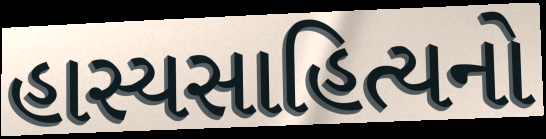
હાસ્યસાહિત્યનો